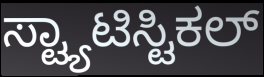
ಸ್ಟ್ಯಾಟಿಸ್ಟಿಕಲ್